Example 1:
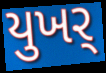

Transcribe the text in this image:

યુખર્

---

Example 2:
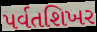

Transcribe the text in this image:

પર્વતશિખર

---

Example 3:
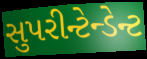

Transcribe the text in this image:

સુપરીન્ટેન્ડેન્ટ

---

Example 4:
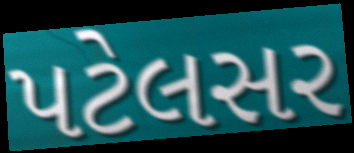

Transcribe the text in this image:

પટેલસર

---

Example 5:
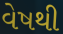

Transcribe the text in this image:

વેષથી